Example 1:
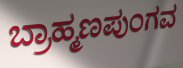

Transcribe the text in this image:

ಬ್ರಾಹ್ಮಣಪುಂಗವ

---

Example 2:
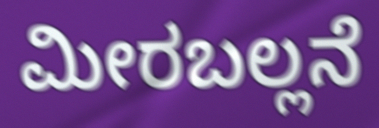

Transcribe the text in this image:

ಮೀರಬಲ್ಲನೆ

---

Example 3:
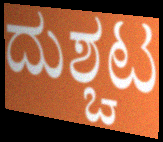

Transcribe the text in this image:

ದುಶ್ಚಟ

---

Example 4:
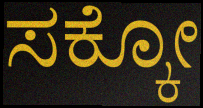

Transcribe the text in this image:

ಸಕ್ಕೋ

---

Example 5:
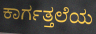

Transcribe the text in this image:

ಕಾರ್ಗತ್ತಲೆಯ